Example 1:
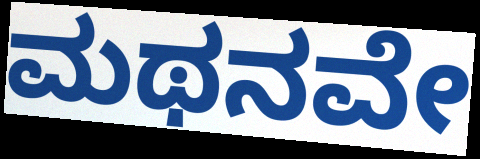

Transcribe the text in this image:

ಮಥನವೇ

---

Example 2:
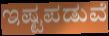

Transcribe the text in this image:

ಇಷ್ಟಪಡುವೆ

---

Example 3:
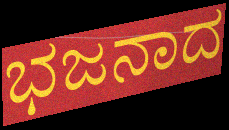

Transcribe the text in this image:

ಭಜನಾದ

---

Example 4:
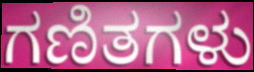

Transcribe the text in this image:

ಗಣಿತಗಳು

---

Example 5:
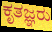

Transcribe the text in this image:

ಕೃತಜ್ಞರು